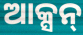
ଆକ୍ସନ୍